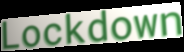
Lockdown